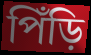
পিঁড়ি